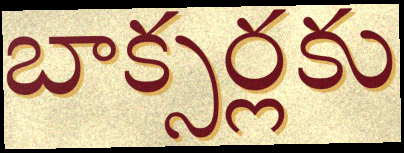
బాక్సర్లకు